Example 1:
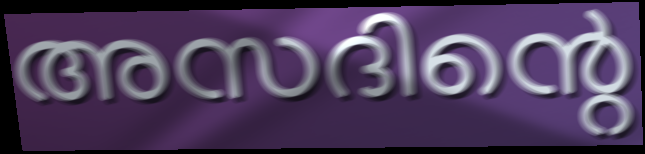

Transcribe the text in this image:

അസദിന്റെ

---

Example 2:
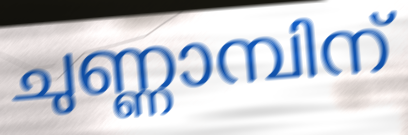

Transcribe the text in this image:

ചുണ്ണാമ്പിന്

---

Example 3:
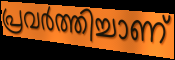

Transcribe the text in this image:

പ്രവർത്തിച്ചാണ്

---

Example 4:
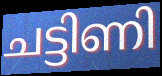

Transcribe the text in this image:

ചട്ടിണി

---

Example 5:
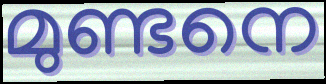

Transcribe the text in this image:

മുണ്ടനെ